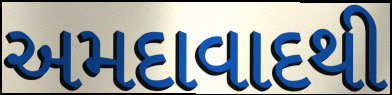
અમદાવાદથી